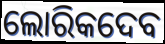
ଲୋରିକଦେବ